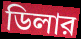
ডিলার